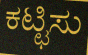
ಕಟ್ಟಿಸು